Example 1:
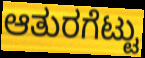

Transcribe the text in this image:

ಆತುರಗೆಟ್ಟು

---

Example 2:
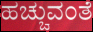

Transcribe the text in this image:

ಹಚ್ಚುವಂತೆ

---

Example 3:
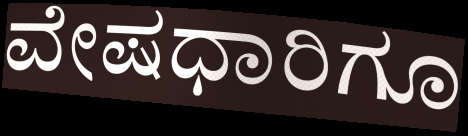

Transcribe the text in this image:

ವೇಷಧಾರಿಗೂ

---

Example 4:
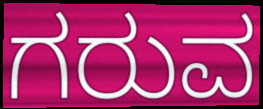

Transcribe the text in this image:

ಗರುವ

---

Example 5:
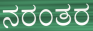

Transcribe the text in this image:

ನರಂತರ